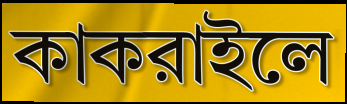
কাকরাইলে